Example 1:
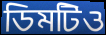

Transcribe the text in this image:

ডিমটিও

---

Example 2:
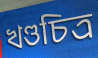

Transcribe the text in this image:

খণ্ডচিত্র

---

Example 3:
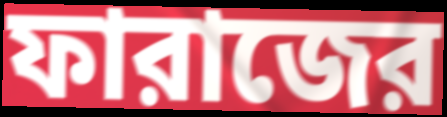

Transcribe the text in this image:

ফারাজের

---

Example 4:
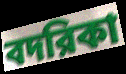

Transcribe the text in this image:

বদরিকা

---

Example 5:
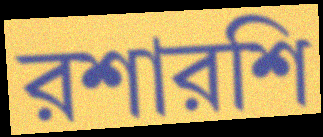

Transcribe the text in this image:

রশারশি